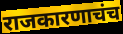
राजकारणाचंच